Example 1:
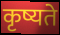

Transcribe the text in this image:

कृष्यते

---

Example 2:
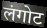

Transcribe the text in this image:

लंगोट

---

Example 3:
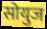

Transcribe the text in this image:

सोयुज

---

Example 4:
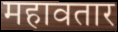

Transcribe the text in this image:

महावतार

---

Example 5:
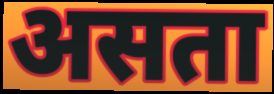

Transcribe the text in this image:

असता